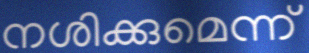
നശിക്കുമെന്ന്